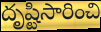
దృష్టిసారించి